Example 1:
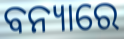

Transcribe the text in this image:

ବନ୍ୟାରେ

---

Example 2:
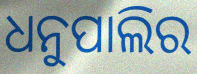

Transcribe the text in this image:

ଧନୁପାଲିର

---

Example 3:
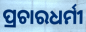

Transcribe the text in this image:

ପ୍ରଚାରଧର୍ମୀ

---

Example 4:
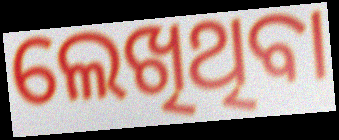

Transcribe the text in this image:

ଲେଖିଥିବା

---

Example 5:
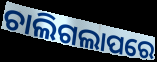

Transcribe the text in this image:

ଚାଲିଗଲାପରେ